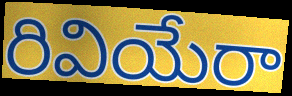
రివియేరా